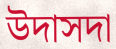
উদাসদা